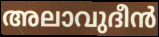
അലാവുദീൻ